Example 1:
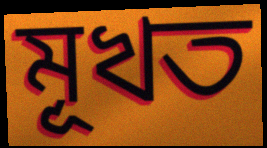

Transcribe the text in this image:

মূখত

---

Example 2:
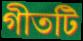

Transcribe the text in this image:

গীতটি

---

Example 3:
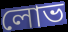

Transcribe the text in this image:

লোভ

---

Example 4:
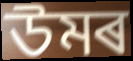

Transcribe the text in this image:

উমৰ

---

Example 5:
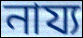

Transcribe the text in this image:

নায্য